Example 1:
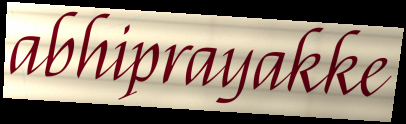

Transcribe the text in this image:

abhiprayakke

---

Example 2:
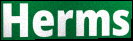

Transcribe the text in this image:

Herms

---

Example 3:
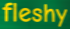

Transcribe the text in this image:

fleshy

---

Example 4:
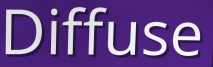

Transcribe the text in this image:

Diffuse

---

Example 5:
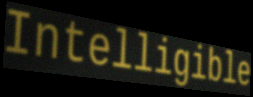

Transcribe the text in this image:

Intelligible